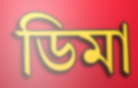
ডিমা